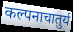
कल्पनाचातुर्य